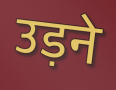
उड़ने